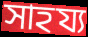
সাহয্য